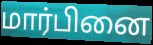
மார்பினை